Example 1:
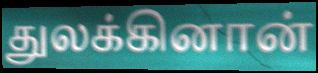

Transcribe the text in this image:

துலக்கினான்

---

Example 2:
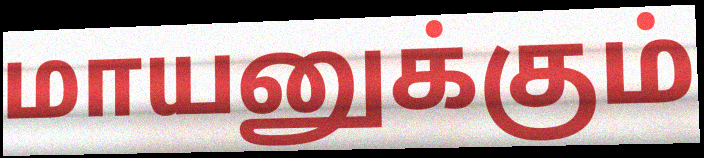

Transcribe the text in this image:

மாயனுக்கும்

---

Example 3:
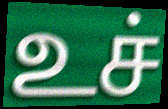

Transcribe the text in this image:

உச்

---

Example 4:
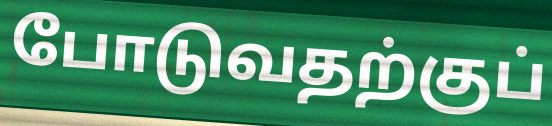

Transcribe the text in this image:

போடுவதற்குப்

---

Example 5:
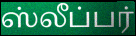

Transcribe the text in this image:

ஸ்லீப்பர்